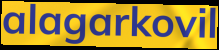
alagarkovil